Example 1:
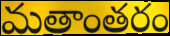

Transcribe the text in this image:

మతాంతరం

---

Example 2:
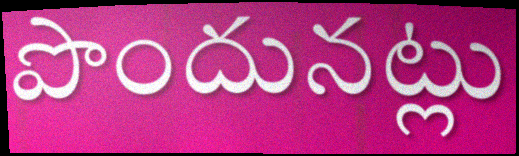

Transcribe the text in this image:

పొందునట్లు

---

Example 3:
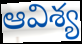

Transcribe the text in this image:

ఆవిశ్య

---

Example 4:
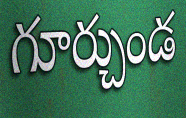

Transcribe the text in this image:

గూర్చుండ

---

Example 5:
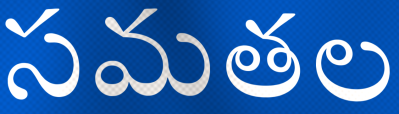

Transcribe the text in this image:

సమతల